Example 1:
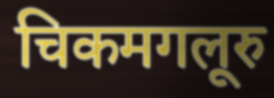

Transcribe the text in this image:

चिकमगलूरु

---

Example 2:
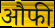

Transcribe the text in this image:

औफी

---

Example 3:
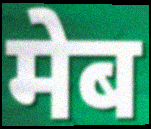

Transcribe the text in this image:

मेब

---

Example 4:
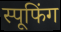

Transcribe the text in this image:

स्पूफिंग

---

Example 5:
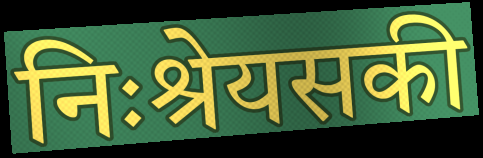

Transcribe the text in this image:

निःश्रेयसकी